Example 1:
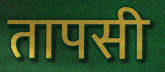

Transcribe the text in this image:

तापसी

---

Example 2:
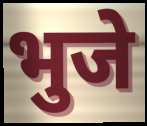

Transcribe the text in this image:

भुजे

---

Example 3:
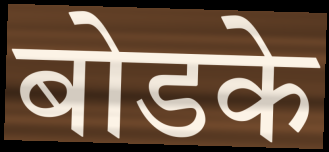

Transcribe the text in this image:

बोडके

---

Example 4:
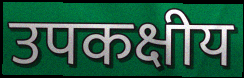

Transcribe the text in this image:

उपकक्षीय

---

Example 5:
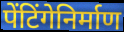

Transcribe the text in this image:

पेंटिंगेनिर्माण